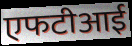
एफटीआई